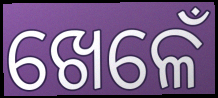
ଖେଳେଁ